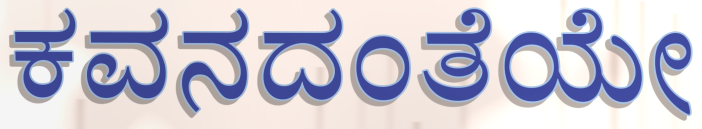
ಕವನದಂತೆಯೇ